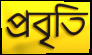
প্রবৃতি